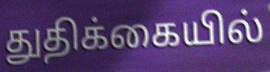
துதிக்கையில்